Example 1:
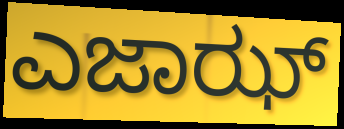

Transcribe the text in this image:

ಎಜಾಝ್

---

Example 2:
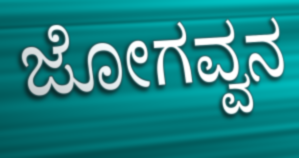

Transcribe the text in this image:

ಜೋಗವ್ವನ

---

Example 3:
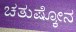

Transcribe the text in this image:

ಚತುಷ್ಕೋನ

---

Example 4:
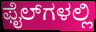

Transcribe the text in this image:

ಫೈಲ್‌ಗಳಲ್ಲಿ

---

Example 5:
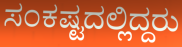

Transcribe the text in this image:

ಸಂಕಷ್ಟದಲ್ಲಿದ್ದರು